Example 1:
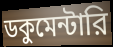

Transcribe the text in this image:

ডকুমেন্টারি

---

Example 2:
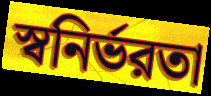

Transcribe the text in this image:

স্বনির্ভরতা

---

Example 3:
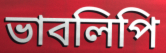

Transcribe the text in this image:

ভাবলিপি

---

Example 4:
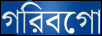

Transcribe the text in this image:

গরিবগো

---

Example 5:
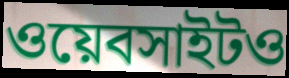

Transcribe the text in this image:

ওয়েবসাইটও